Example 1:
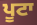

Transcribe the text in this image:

ਪੂਟਾ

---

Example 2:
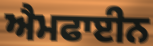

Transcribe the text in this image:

ਐਮਫਾਈਨ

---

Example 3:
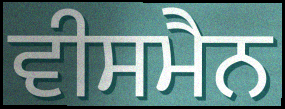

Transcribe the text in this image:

ਵੀਸਮੈਨ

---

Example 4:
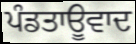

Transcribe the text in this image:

ਪੰਡਤਾਊਵਾਦ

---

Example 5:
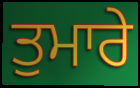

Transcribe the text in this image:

ਤੁਮਾਰੇ